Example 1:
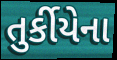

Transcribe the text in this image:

તુર્કીયેના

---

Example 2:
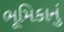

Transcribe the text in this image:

ભૂમિકાનું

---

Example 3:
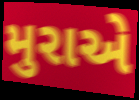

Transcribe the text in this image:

મુરાએ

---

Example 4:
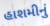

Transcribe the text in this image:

હાશમીનું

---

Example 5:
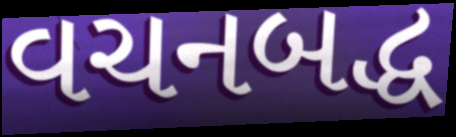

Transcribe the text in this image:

વચનબદ્ધ